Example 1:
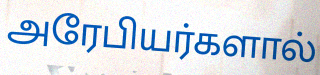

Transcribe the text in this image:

அரேபியர்களால்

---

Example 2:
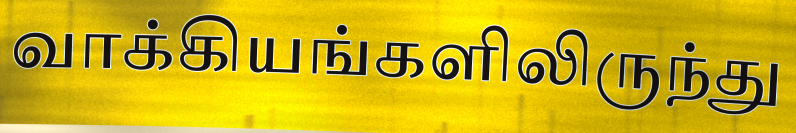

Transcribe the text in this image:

வாக்கியங்களிலிருந்து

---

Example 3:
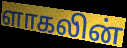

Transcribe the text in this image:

ளாகலின்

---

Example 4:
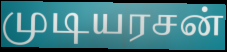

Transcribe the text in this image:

முடியரசன்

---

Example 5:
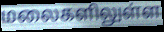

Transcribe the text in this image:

மலைகளிலுள்ள